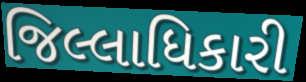
જિલ્લાધિકારી